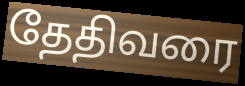
தேதிவரை